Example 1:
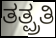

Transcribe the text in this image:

ತತ್ಪ್ರತಿ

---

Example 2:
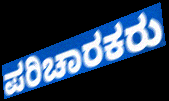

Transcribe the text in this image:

ಪರಿಚಾರಕರು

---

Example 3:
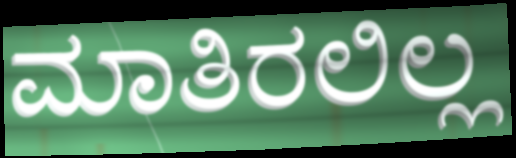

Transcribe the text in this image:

ಮಾತಿರಲಿಲ್ಲ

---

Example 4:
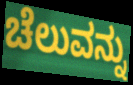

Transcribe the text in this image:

ಚೆಲುವನ್ನು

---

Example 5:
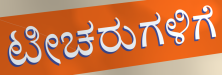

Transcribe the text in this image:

ಟೀಚರುಗಳಿಗೆ